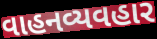
વાહનવ્યવહાર